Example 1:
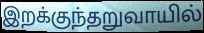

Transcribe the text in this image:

இறக்குந்தறுவாயில்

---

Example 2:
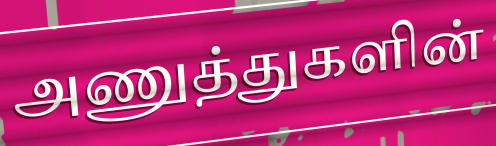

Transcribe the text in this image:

அணுத்துகளின்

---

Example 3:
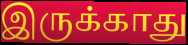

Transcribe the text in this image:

இருக்காது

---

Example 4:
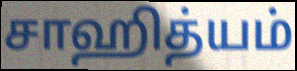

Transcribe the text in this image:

சாஹித்யம்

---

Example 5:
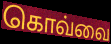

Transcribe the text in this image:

கொவ்வை